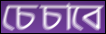
চেচাবে